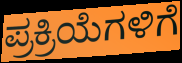
ಪ್ರಕ್ರಿಯೆಗಳಿಗೆ